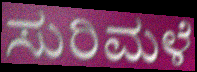
ಸುರಿಮಳೆ